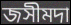
জসীমদা